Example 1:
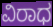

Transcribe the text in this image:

ವಿರಾಧ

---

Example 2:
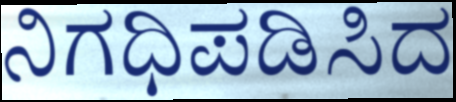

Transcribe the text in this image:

ನಿಗಧಿಪಡಿಸಿದ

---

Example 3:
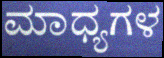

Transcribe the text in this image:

ಮಾಧ್ಯಗಳ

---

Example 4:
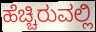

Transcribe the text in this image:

ಹೆಚ್ಚಿರುವಲ್ಲಿ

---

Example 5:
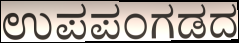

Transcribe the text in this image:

ಉಪಪಂಗಡದ